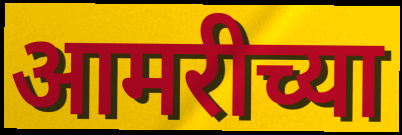
आमरीच्या